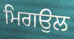
ਮਿਗਉਲ